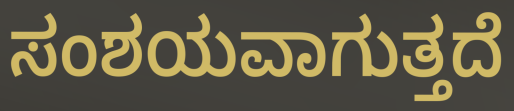
ಸಂಶಯವಾಗುತ್ತದೆ